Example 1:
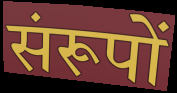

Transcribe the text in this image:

संरूपों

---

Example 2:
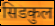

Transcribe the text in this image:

सिडकुल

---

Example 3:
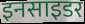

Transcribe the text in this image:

इनसाइडर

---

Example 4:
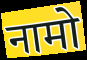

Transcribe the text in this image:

नामो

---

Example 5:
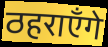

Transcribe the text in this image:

ठहराएँगे